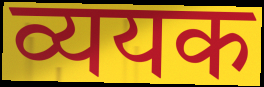
व्ययक